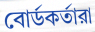
বোর্ডকর্তারা